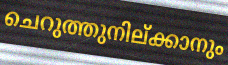
ചെറുത്തുനില്ക്കാനും